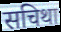
सचिथा